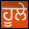
ਹੂਲੇ